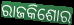
ରାଜକିଶୋର